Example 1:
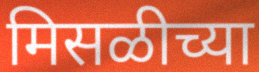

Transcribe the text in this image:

मिसळीच्या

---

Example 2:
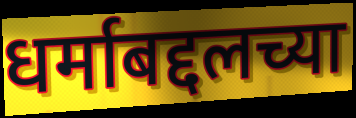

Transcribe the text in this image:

धर्माबद्दलच्या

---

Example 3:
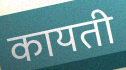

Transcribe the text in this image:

कायती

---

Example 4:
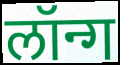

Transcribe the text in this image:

लॉन्ग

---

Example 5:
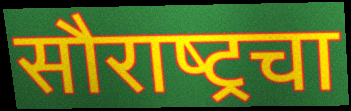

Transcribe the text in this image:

सौराष्ट्रचा